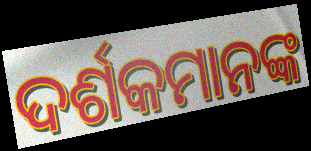
ଦର୍ଶକମାନଙ୍କ